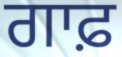
ਗਾਫ਼